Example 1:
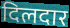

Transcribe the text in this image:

दिलदार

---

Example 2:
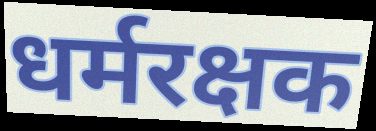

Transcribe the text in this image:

धर्मरक्षक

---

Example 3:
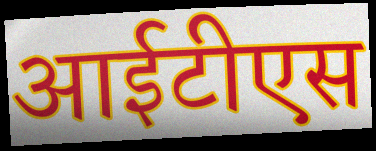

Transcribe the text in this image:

आईटीएस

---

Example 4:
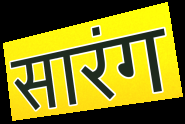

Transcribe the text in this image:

सारंग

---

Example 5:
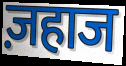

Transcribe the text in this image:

ज़हाज